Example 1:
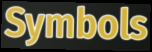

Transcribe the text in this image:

Symbols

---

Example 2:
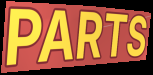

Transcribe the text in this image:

PARTS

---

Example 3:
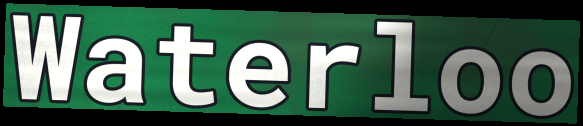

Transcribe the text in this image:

Waterloo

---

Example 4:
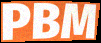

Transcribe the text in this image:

PBM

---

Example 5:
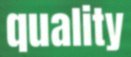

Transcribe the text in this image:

quality